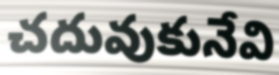
చదువుకునేవి